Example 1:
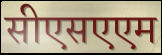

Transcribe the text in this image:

सीएसएएम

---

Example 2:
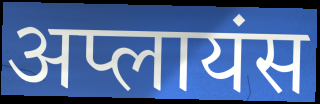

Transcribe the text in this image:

अप्लायंस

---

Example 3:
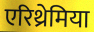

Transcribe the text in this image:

एरिथ्रेमिया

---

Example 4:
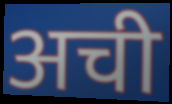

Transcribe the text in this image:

अची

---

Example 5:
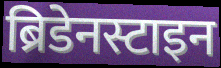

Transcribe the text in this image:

ब्रिडेनस्टाइन